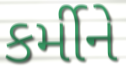
કર્મીને